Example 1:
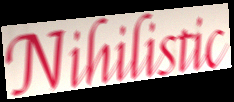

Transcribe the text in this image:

Nihilistic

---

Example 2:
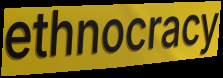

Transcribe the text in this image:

ethnocracy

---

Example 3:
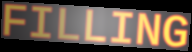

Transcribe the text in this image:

FILLING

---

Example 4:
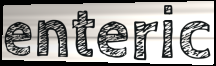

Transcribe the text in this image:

enteric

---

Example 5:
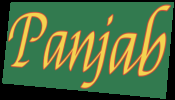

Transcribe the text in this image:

Panjab